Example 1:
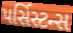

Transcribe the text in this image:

પર્સિસ્ટન્સ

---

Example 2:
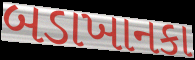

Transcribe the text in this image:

બડાખાનકા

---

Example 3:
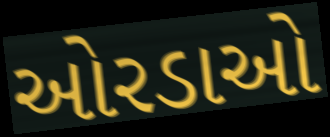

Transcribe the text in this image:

ઓરડાઓ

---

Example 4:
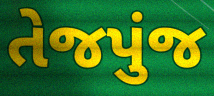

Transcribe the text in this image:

તેજપુંજ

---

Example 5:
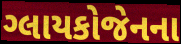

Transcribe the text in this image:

ગ્લાયકોજેનના